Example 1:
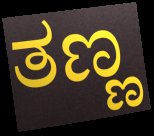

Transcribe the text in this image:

ತಣ್ಣ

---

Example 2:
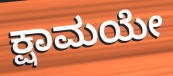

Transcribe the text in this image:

ಕ್ಷಾಮಯೇ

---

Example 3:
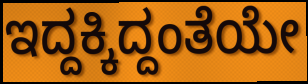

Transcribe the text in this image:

ಇದ್ದಕ್ಕಿದ್ದಂತೆಯೇ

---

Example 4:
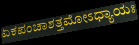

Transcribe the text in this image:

ಏಕಪಂಚಾಶತ್ತಮೋಽಧ್ಯಾಯಃ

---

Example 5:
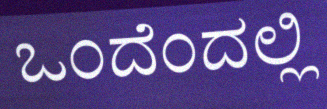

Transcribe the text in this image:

ಒಂದೆಂದಲ್ಲಿ